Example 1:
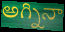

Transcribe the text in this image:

అగ్నినా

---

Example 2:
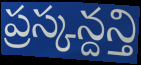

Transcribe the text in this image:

ప్రస్కన్దన్తి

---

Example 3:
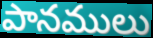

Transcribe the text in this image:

పానములు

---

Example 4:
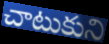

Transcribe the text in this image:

చాటుకుని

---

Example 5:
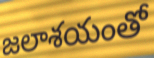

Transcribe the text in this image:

జలాశయంతో